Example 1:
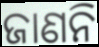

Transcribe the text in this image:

ଜାଣନି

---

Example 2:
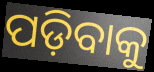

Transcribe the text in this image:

ପଡ଼ିବାକୁ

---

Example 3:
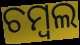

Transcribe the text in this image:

ଚମ୍ବଲ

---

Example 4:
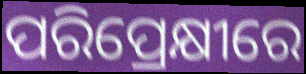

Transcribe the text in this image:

ପରିପ୍ରେକ୍ଷୀରେ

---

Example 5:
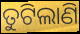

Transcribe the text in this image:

ତୁଟିଲାଣି